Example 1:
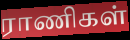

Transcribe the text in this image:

ராணிகள்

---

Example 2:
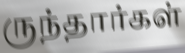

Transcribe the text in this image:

ருந்தார்கள்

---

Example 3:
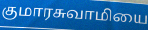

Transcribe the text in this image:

குமாரசுவாமியை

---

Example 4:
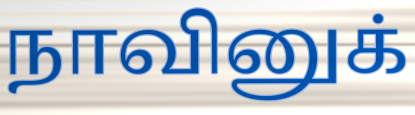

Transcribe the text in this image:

நாவினுக்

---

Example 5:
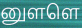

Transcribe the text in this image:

னுளளெ